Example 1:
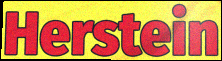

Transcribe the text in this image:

Herstein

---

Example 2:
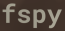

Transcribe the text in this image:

fspy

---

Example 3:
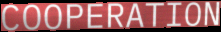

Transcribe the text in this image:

COOPERATION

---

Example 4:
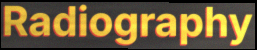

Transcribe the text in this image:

Radiography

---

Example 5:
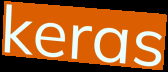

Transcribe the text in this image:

keras